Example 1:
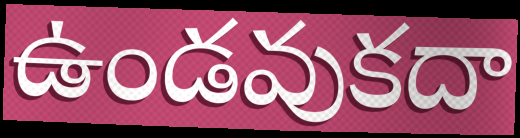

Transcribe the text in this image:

ఉండవుకదా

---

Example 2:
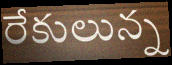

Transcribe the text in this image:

రేకులున్న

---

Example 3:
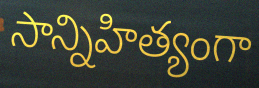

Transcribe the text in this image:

సాన్నిహిత్యంగా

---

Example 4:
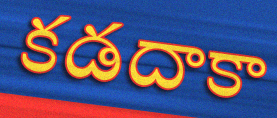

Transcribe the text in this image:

కడదాకా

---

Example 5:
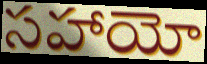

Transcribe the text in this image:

సహాయో